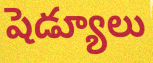
షెడ్యూలు